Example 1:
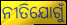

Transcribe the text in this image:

ନୀତିଯୋଗୁଁ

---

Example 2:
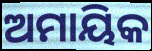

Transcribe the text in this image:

ଅମାୟିକ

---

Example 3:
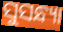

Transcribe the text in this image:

ସୁସନ୍ଧ୍ୟା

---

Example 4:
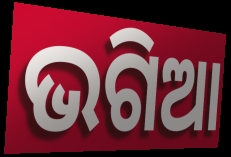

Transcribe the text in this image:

ଭଗିଆ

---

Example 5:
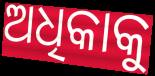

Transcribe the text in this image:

ଅଧିକାକୁ